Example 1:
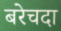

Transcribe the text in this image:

बरेचदा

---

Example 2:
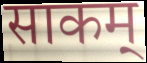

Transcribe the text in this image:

साकम्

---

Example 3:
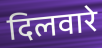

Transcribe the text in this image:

दिलवारे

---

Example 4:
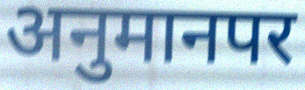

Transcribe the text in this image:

अनुमानपर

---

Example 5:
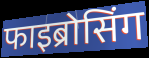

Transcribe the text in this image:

फाइब्रोसिंग